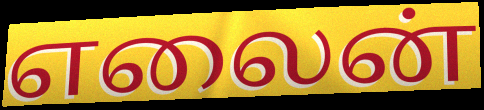
எலைன்